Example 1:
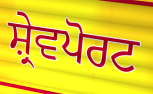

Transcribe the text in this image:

ਸ਼੍ਰੇਵਪੋਰਟ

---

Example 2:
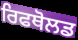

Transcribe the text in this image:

ਰਿਫਥੋਲਡ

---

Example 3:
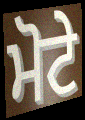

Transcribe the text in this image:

ਮੋਟੇ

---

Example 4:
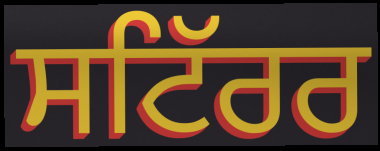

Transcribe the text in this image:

ਸਟਿੱਰਰ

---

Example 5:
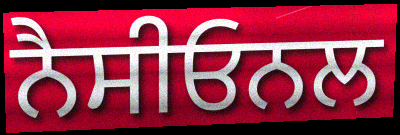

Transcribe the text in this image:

ਨੈਸੀਓਨਲ